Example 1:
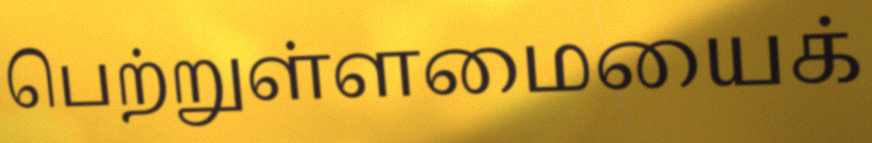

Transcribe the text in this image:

பெற்றுள்ளமையைக்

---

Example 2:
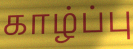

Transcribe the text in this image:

காழ்ப்பு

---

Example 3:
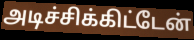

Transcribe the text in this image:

அடிச்சிக்கிட்டேன்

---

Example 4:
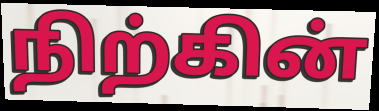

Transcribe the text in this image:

நிற்கின்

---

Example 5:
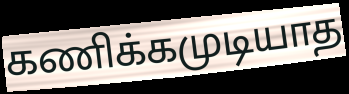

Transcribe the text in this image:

கணிக்கமுடியாத